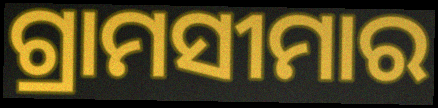
ଗ୍ରାମସୀମାର